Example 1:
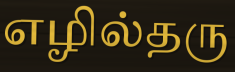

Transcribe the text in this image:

எழில்தரு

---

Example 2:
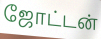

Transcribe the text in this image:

ஜோட்டன்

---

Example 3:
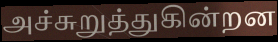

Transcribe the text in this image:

அச்சுறுத்துகின்றன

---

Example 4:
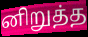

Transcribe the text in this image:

னிறுத்த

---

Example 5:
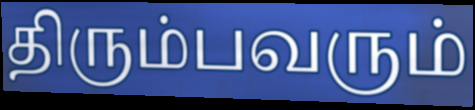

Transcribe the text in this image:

திரும்பவரும்